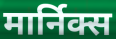
मार्निक्स